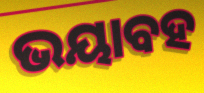
ଭୟାବହ